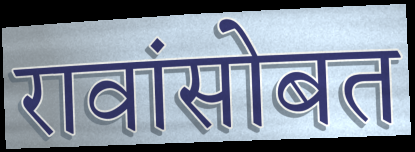
रावांसोबत